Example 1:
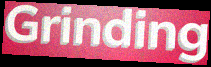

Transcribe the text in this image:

Grinding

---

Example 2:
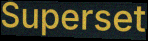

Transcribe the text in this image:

Superset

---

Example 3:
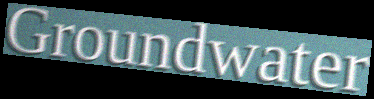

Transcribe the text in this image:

Groundwater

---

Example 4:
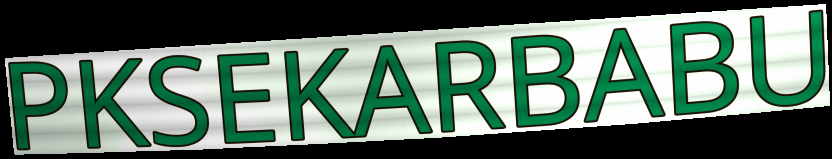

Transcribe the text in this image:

PKSEKARBABU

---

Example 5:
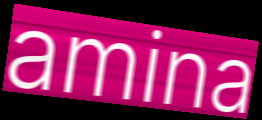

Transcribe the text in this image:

amina